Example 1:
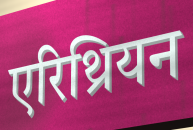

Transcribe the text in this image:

एरिथ्रियन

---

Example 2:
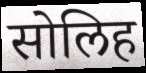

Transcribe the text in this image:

सोलिह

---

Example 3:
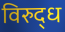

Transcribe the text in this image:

विरुद्ध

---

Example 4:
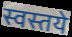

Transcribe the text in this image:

स्वस्तये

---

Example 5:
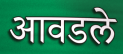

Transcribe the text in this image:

आवडले